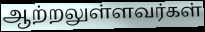
ஆற்றலுள்ளவர்கள்